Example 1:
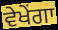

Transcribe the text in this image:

ਵੇਖੇਂਗਾ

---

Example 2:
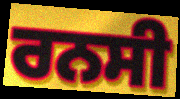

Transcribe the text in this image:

ਰਨਸੀ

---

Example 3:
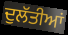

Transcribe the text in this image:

ਦੁਲੱਤੀਆਂ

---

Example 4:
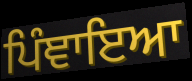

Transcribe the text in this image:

ਪਿੰਞਾਇਆ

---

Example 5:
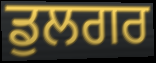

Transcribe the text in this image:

ਡੁਲਗਰ